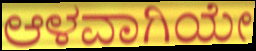
ಆಳವಾಗಿಯೇ